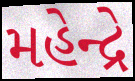
મહેન્દ્રે